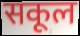
सकूल